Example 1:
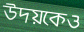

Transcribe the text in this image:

উদয়কেও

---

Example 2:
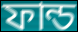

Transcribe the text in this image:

ফান্ড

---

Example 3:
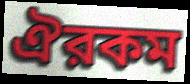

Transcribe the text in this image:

ঐরকম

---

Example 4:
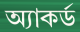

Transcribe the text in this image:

অ্যাকর্ড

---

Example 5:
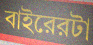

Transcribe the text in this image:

বাইরেরটা